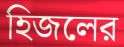
হিজলের